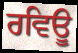
ਰਵਿਊ